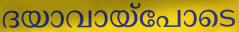
ദയാവായ്പോടെ